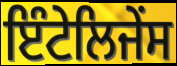
ਇੰਟੇਲਿਜੇਂਸ